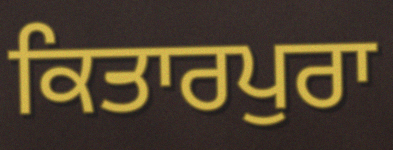
ਕਿਤਾਰਪੁਰਾ